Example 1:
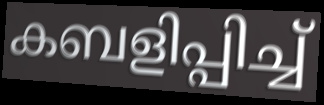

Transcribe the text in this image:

കബളിപ്പിച്ച്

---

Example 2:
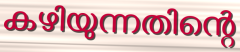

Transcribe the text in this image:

കഴിയുന്നതിന്റെ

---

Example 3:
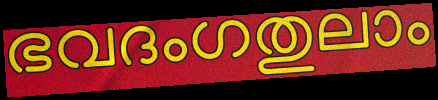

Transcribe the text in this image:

ഭവദംഗതുലാം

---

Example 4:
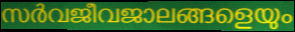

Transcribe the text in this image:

സർവജീവജാലങ്ങളെയും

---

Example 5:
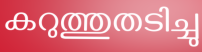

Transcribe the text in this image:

കറുത്തുതടിച്ചു